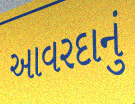
આવરદાનું